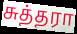
சுத்தரா